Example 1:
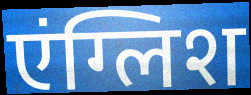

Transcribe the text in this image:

एंग्लिश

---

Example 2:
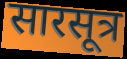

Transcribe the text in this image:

सारसूत्र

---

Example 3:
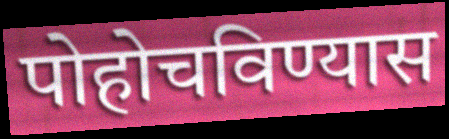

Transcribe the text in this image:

पोहोचविण्यास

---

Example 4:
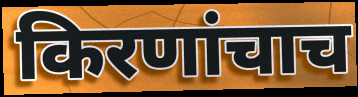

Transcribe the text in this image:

किरणांचाच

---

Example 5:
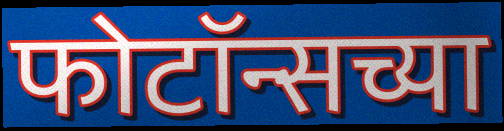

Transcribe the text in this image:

फोटॉन्सच्या